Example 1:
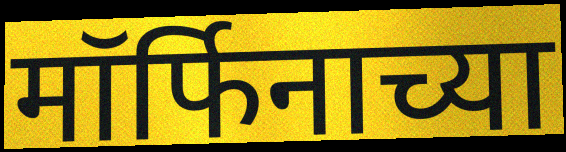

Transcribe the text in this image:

मॉर्फिनाच्या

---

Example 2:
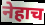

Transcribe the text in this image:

नेहाच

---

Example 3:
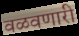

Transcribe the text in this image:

वळवणारी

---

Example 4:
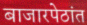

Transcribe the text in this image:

बाजारपेठांत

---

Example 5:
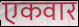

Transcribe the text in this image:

एकवार